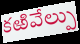
కఱివేల్పు